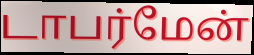
டாபர்மேன்